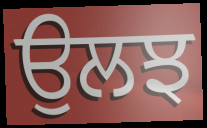
ਉਲਝ